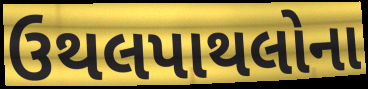
ઉથલપાથલોના